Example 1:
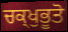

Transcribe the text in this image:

ਚਕ੍ਖੁਭੂਤੋ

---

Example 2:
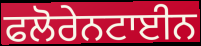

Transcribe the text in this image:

ਫਲੋਰੇਨਟਾਈਨ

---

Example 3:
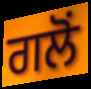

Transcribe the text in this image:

ਗਲੋਂ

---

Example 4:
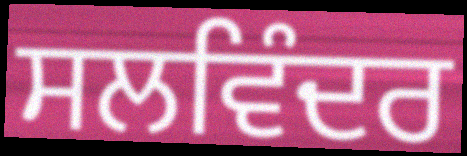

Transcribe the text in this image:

ਸਲਵਿੰਦਰ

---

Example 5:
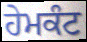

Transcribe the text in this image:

ਹੇਮਕੰਟ